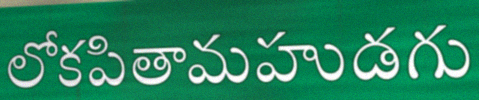
లోకపితామహుడగు